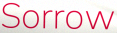
Sorrow